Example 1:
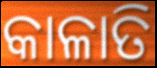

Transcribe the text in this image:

କାଳାତି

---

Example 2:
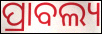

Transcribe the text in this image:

ପ୍ରାବଲ୍ୟ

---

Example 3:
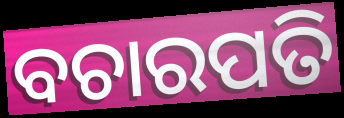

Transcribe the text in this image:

ବଚାରପତି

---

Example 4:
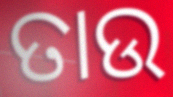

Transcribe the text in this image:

ତାଉ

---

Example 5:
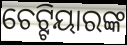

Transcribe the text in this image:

ଚେଟ୍ଟିୟାରଙ୍କ